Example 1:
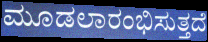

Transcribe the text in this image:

ಮೂಡಲಾರಂಭಿಸುತ್ತದೆ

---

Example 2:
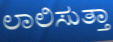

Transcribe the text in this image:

ಲಾಲಿಸುತ್ತಾ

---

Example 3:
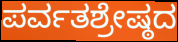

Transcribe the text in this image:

ಪರ್ವತಶ್ರೇಷ್ಠದ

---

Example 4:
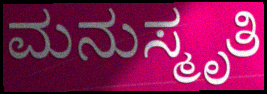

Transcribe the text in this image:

ಮನುಸ್ಮೃತಿ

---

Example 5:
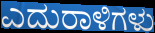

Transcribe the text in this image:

ಎದುರಾಳಿಗಳು